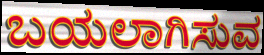
ಬಯಲಾಗಿಸುವ